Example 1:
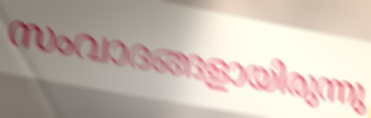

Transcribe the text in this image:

സംവാദങ്ങളായിരുന്നു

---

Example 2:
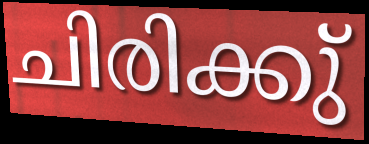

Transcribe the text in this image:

ചിരിക്കു്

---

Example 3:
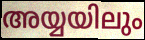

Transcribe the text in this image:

അയ്യയിലും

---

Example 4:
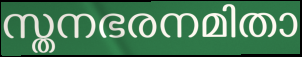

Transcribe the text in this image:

സ്തനഭരനമിതാ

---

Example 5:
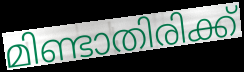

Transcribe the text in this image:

മിണ്ടാതിരിക്ക്